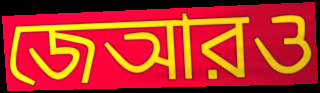
জেআরও